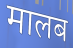
मालब